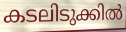
കടലിടുക്കിൽ